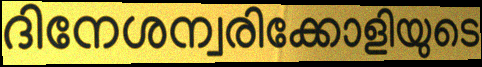
ദിനേശന്വരിക്കോളിയുടെ